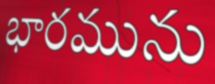
భారమును